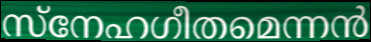
സ്നേഹഗീതമെന്നൻ